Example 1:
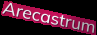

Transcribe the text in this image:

Arecastrum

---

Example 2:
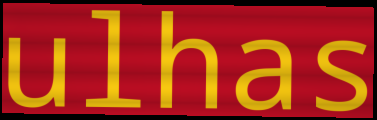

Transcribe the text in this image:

ulhas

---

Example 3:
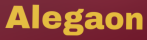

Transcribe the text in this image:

Alegaon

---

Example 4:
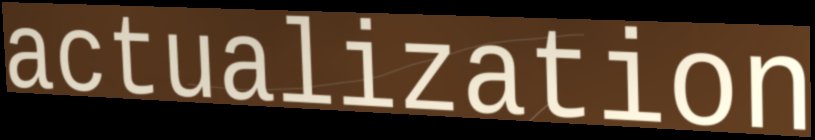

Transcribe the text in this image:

actualization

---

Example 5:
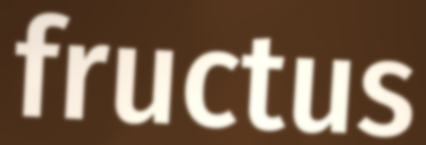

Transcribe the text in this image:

fructus